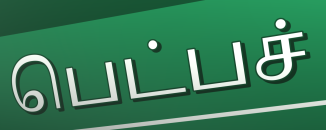
பெட்பச்